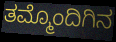
ತಮ್ಮೊಂದಿಗಿನ